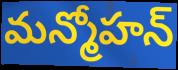
మన్మోహన్